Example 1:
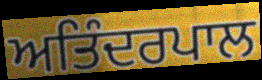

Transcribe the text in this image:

ਅਤਿੰਦਰਪਾਲ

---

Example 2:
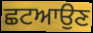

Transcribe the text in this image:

ਛਟਆਉਣ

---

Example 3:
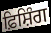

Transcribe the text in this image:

ਫ਼ਿਸ਼ਿੰਗ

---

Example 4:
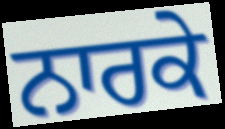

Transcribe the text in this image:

ਨਾਰਕੇ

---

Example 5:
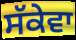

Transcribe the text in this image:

ਸੱਕੇਵਾ